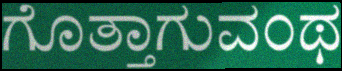
ಗೊತ್ತಾಗುವಂಥ